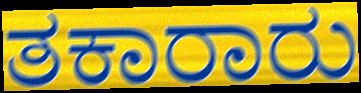
ತಕಾರಾರು